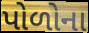
પોળોના